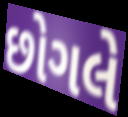
છોગલે